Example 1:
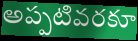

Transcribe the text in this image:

అప్పటివరకూ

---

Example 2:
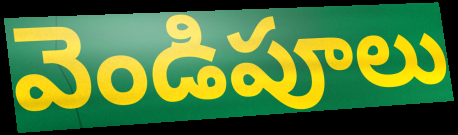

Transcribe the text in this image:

వెండిపూలు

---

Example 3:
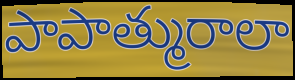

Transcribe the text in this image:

పాపాత్మురాలా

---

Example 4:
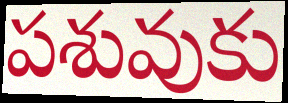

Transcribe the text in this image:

పశువుకు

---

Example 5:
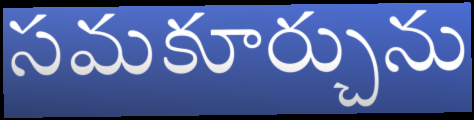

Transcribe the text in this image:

సమకూర్చును